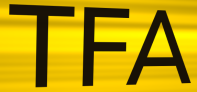
TFA